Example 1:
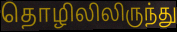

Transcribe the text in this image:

தொழிலிலிருந்து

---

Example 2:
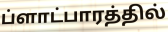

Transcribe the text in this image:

ப்ளாட்பாரத்தில்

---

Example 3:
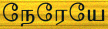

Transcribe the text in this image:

நேரேயே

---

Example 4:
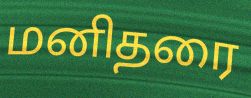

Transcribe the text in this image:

மனிதரை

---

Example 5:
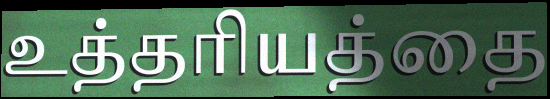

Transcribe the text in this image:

உத்தரியத்தை